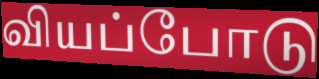
வியப்போடு